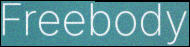
Freebody